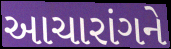
આચારાંગને